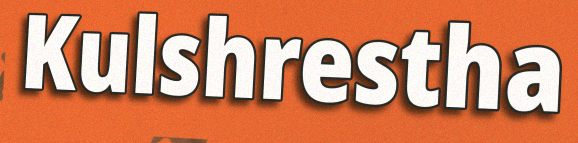
Kulshrestha